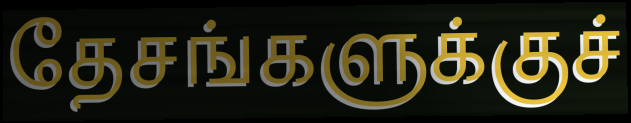
தேசங்களுக்குச்